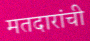
मतदारांची